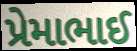
પ્રેમાભાઈ